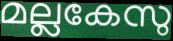
മല്ലകേസു